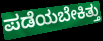
ಪಡೆಯಬೇಕಿತ್ತು